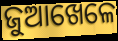
ଜୁଆଖେଳେ